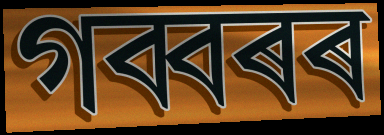
গব্বৰৰ